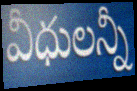
వీధులన్నీ